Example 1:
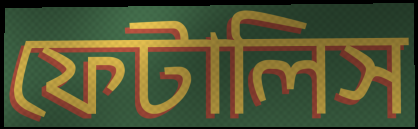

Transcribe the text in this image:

ফেটালিস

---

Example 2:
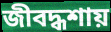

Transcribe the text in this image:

জীবদ্ধশায়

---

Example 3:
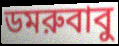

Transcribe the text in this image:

ডমরুবাবু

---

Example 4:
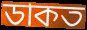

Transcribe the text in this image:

ডাকত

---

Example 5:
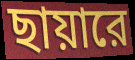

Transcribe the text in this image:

ছায়ারে